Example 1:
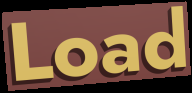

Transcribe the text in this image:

Load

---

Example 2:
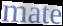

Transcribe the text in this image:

mate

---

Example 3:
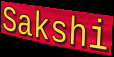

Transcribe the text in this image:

Sakshi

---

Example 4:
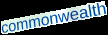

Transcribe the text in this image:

commonwealth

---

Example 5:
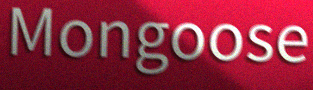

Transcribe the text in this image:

Mongoose